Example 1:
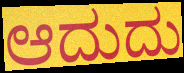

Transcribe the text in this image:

ಆದುದು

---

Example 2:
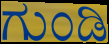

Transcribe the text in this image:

ಗುಂಡಿ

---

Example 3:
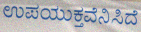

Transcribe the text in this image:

ಉಪಯುಕ್ತವೆನಿಸಿದೆ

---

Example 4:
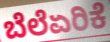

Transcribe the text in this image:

ಬೆಲೆಏರಿಕೆ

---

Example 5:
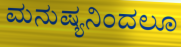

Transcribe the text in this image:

ಮನುಷ್ಯನಿಂದಲೂ